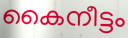
കൈനീട്ടം